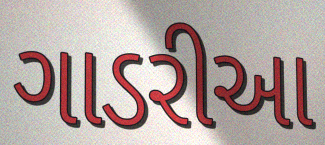
ગાડરીઆ